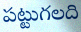
పట్టుగలది